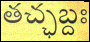
తచ్ఛబ్దః